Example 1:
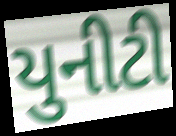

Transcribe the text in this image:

યુનીટી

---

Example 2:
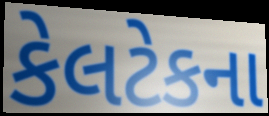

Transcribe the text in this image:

કેલટેકના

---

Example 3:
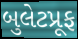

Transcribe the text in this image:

બુલેટપ્રૂફ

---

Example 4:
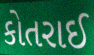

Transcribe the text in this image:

કોતરાઈ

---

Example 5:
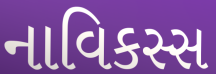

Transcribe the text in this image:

નાવિકસ્સ